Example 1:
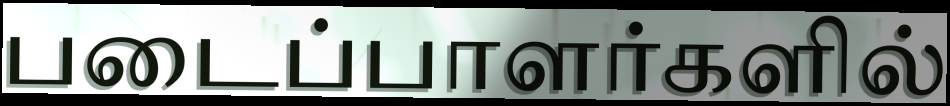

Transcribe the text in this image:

படைப்பாளர்களில்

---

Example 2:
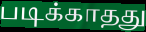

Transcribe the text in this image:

படிக்காதது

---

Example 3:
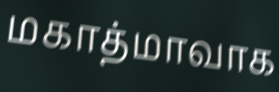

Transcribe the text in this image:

மகாத்மாவாக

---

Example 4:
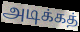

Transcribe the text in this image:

அடிக்கத்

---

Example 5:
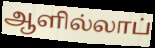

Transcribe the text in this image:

ஆளில்லாப்